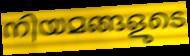
നിയമങ്ങളുടെ